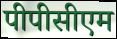
पीपीसीएम